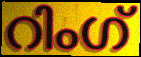
റിംഗ്